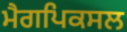
ਮੈਗਪਿਕਸਲ